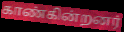
காண்கின்றனர்